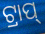
ଟ୍ରାପ୍